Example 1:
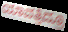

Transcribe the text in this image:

ಯಾವತ್ತಿದ್ರೂ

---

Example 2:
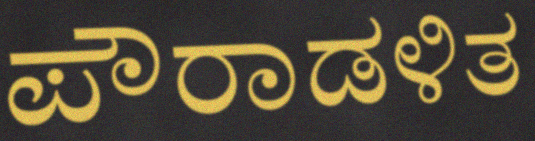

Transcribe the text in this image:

ಪೌರಾಡಳಿತ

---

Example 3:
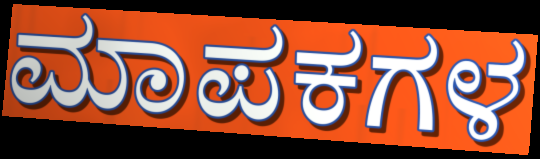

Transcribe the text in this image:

ಮಾಪಕಗಳ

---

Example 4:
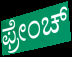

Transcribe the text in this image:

ಫ್ರೇಂಚ್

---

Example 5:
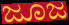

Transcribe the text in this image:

ಜೂಜ